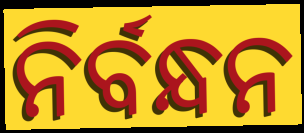
ନିର୍ବନ୍ଧନ